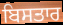
ਬਿਸਤਾਰ